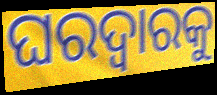
ଘରଦ୍ୱାରକୁ